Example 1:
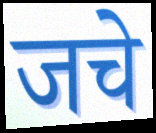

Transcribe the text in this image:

जचे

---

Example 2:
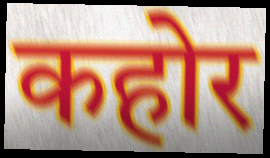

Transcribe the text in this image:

कहोर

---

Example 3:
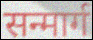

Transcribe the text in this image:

सन्मार्ग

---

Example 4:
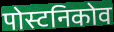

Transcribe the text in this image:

पोस्टनिकोव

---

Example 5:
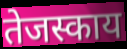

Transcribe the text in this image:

तेजस्काय